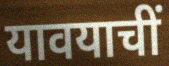
यावयाचीं